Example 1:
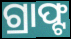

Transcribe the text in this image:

ଗ୍ରାଫ୍ଟ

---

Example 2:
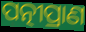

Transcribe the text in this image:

ପତ୍ନୀପ୍ରାଣ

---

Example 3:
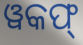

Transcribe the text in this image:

ୱକଫ୍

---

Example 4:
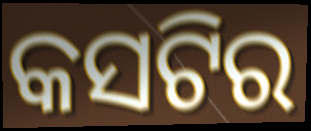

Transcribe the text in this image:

କସଟିର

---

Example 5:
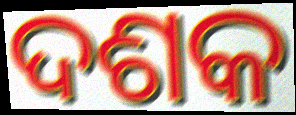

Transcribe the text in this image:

ଦଶକ